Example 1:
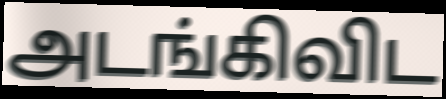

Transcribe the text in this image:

அடங்கிவிட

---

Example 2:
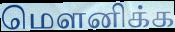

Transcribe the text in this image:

மெளனிக்க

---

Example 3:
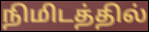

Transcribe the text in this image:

நிமிடத்தில்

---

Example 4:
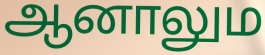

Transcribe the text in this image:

ஆனாலும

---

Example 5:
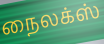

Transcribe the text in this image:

நைலக்ஸ்